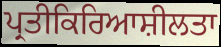
ਪ੍ਰਤੀਕਿਰਿਆਸ਼ੀਲਤਾ